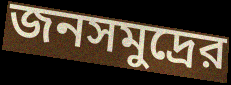
জনসমুদ্রের